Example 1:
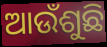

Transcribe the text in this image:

ଆଉଁଶୁଛି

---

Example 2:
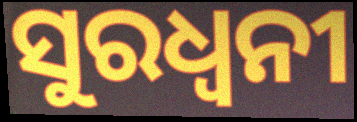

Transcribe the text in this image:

ସୁରଧ୍ୱନୀ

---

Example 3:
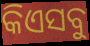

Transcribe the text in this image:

କିଏସବୁ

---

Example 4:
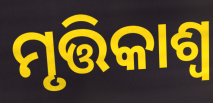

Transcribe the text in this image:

ମୃତ୍ତିକାଶ୍ୱ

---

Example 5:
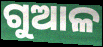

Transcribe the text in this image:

ଗୁଆଳ